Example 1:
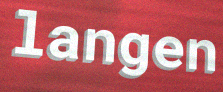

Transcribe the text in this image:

langen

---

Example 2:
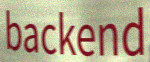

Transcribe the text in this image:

backend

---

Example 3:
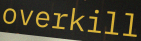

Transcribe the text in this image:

overkill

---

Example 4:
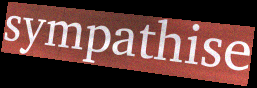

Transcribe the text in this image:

sympathise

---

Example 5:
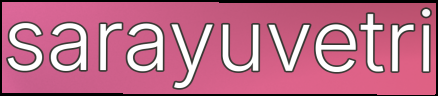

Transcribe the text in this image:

sarayuvetri